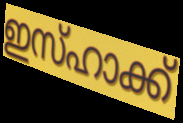
ഇസ്ഹാക്ക്